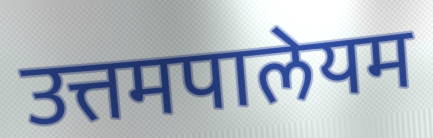
उत्तमपालेयम